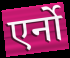
एर्नो